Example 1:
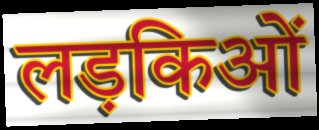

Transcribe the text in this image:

लड़किओं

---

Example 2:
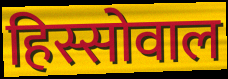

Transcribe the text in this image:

हिस्सोवाल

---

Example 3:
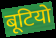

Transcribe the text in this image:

बूटियो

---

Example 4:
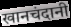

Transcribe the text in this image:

खानचंदानी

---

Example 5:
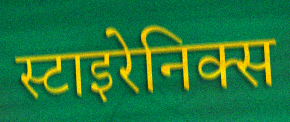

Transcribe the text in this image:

स्टाइरेनिक्स